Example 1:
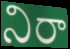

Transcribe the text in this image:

నిరా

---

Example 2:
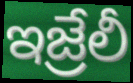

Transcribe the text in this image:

ఇజ్రేలీ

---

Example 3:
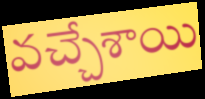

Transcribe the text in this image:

వచ్చేశాయి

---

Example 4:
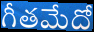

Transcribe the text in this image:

గీతమేదో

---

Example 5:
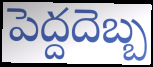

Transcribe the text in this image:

పెద్దదెబ్బ